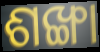
ଶଙ୍ଖା